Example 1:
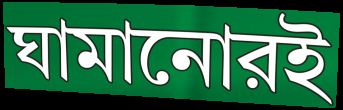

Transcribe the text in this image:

ঘামানোরই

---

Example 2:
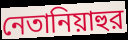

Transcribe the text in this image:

নেতানিয়াহুর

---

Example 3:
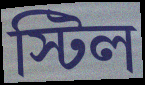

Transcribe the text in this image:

স্টিল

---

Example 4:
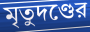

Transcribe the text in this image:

মৃতুদণ্ডের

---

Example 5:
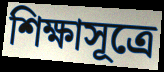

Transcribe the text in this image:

শিক্ষাসূত্রে